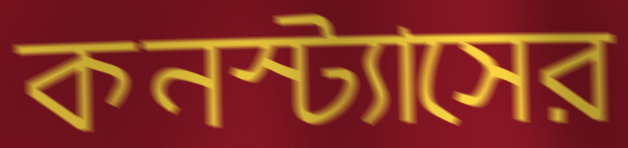
কনস্ট্যাসের